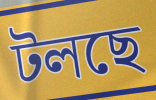
টলছে